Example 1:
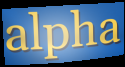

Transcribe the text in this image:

alpha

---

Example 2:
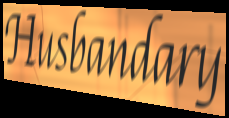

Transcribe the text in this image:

Husbandary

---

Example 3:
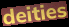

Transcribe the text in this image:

deities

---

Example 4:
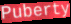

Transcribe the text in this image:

Puberty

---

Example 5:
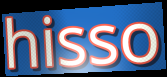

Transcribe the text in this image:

hisso